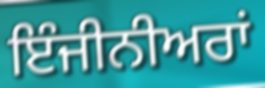
ਇੰਜੀਨੀਅਰਾਂ